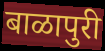
बाळापुरी